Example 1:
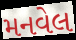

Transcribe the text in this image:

મનવેલ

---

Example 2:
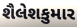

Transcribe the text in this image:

શૈલેશકુમાર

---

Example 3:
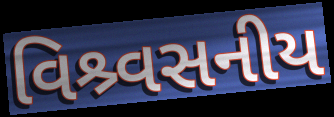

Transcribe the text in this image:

વિશ્ર્વસનીય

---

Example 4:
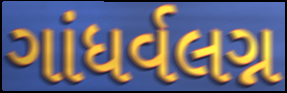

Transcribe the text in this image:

ગાંધર્વલગ્ન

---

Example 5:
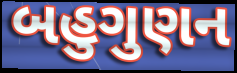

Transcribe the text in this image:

બહુગુણન